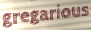
gregarious